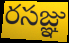
రసజ్ఞు